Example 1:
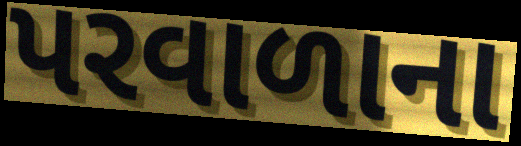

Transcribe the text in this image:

પરવાળાના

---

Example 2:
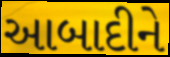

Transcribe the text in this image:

આબાદીને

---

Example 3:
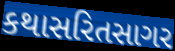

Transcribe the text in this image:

કથાસરિતસાગર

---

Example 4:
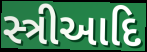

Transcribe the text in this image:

સ્ત્રીઆદિ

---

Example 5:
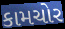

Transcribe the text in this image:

કામચોર